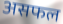
असफल